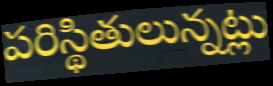
పరిస్థితులున్నట్లు